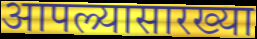
आपल्यासारख्या